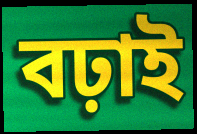
বঢ়াই